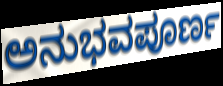
ಅನುಭವಪೂರ್ಣ